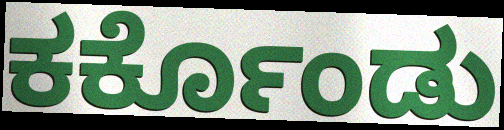
ಕರ್ಕೊಂಡು